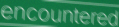
encountered